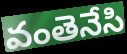
వంతెనేసి